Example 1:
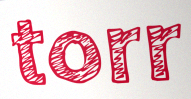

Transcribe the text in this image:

torr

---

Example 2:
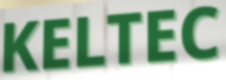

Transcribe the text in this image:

KELTEC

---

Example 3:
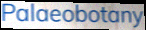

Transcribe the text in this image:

Palaeobotany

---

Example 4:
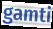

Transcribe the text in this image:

gamti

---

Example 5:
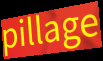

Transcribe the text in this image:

pillage